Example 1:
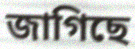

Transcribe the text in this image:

জাগিছে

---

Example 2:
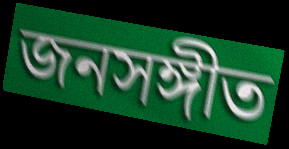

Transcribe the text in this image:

জনসঙ্গীত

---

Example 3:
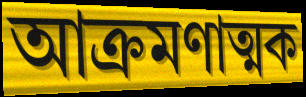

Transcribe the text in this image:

আক্ৰমণাত্মক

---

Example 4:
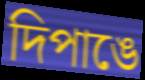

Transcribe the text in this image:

দিপাঙে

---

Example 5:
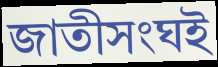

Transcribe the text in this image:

জাতীসংঘই